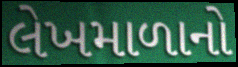
લેખમાળાનો